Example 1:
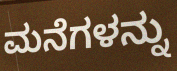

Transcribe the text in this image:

ಮನೆಗಳನ್ನು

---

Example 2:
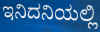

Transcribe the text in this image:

ಇನಿದನಿಯಲ್ಲಿ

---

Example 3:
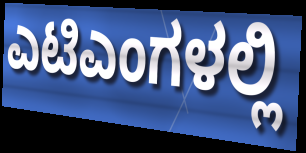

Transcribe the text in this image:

ಎಟಿಎಂಗಳಲ್ಲಿ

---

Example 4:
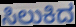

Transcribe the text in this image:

ಸಿಲುಕಿದ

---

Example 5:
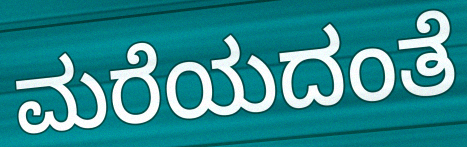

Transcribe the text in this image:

ಮರೆಯದಂತೆ